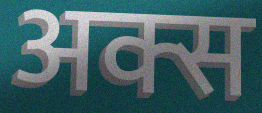
अक्स